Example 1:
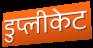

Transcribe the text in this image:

डुप्‍लीकेट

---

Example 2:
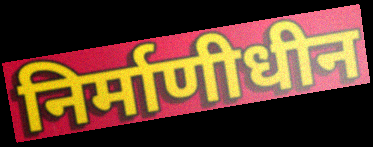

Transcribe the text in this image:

निर्माणीधीन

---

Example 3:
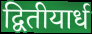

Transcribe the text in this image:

द्वितीयार्ध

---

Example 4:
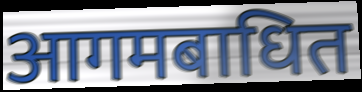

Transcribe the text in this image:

आगमबाधित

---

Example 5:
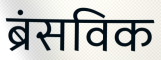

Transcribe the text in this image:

ब्रंसविक